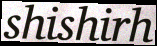
shishirh